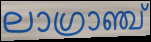
ലാഗ്രാഞ്ച്